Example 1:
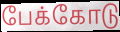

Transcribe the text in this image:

பேக்கோடு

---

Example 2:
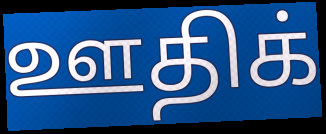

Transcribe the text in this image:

ஊதிக்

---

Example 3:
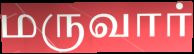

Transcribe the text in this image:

மருவார்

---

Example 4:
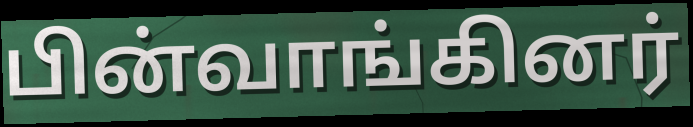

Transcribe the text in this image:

பின்வாங்கினர்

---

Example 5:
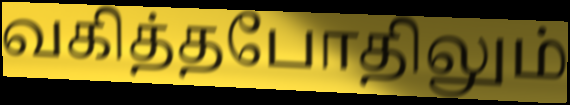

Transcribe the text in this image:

வகித்தபோதிலும்